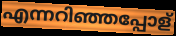
എന്നറിഞ്ഞപ്പോള്